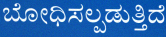
ಬೋಧಿಸಲ್ಪಡುತ್ತಿದೆ